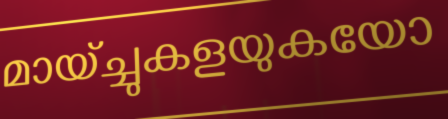
മായ്ച്ചുകളയുകയോ